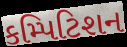
કમ્પિટિશન